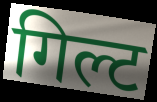
गिल्ट